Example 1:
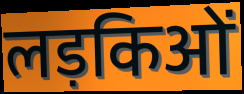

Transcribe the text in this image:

लड़किओं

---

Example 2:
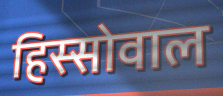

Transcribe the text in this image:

हिस्सोवाल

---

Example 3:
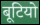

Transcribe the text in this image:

बूटियो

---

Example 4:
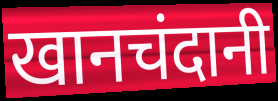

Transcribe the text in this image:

खानचंदानी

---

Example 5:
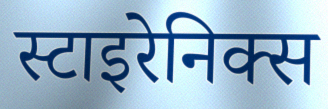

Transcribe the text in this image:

स्टाइरेनिक्स